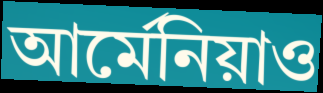
আর্মেনিয়াও